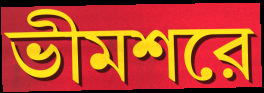
ভীমশরে